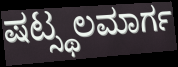
ಷಟ್ಸ್ಥಲಮಾರ್ಗ